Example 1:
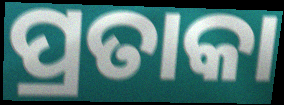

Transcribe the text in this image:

ପ୍ରତାକା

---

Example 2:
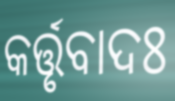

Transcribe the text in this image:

କର୍ତ୍ତୃବାଦଃ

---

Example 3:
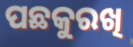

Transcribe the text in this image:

ପଛକୁରଖି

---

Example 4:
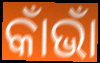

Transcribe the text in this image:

କାଁଭାଁ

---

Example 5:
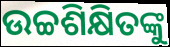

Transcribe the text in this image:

ଉଚ୍ଚଶିକ୍ଷିତଙ୍କୁ